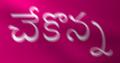
చేకొన్న